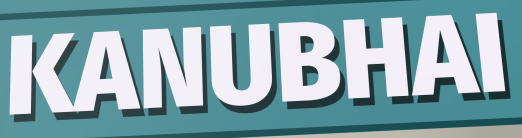
KANUBHAI